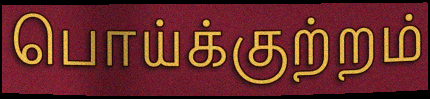
பொய்க்குற்றம்